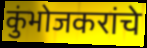
कुंभोजकरांचे